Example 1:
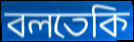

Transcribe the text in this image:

বলতেকি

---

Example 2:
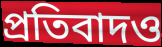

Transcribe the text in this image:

প্রতিবাদও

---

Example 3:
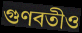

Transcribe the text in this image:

গুণবতীও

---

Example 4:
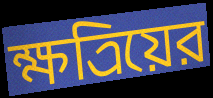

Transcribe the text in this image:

ক্ষত্রিয়ের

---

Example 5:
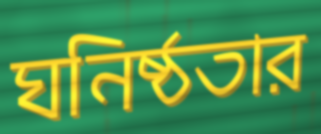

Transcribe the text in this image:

ঘনিষ্ঠতার